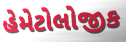
હેમેટોલોજીક